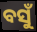
ବସୁଁ